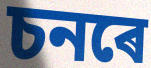
চনৰে